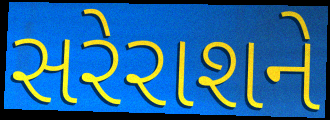
સરેરાશને